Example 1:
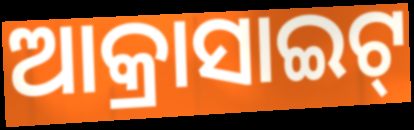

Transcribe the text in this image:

ଆକ୍ରାସାଇଟ୍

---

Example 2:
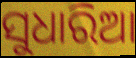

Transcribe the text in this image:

ସୁଧାରିଆ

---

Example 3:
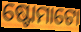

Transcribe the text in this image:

ଷ୍ଟୋମାଟୋ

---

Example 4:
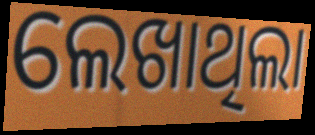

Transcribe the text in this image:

ଲେଖାଥିଲା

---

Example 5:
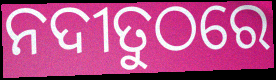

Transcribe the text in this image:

ନଦୀତୁଠରେ